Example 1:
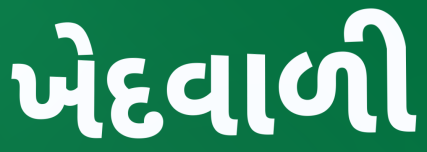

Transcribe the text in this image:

ખેદવાળી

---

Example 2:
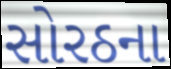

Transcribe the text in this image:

સોરઠના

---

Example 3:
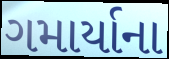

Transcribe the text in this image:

ગમાર્યાના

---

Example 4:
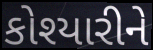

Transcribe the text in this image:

કોશ્યારીને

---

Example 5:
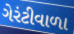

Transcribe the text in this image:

ગેરંટીવાળા